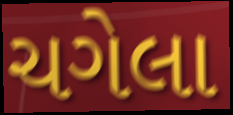
ચગેલા